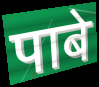
पाबे